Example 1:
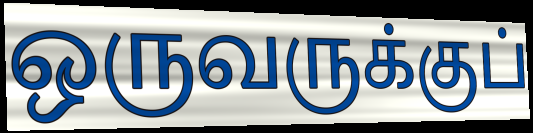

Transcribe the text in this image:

ஒருவருக்குப்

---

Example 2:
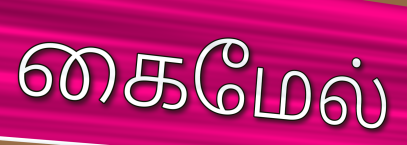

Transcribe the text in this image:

கைமேல்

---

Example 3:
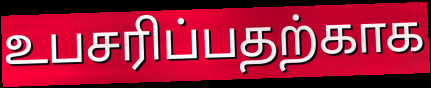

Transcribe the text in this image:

உபசரிப்பதற்காக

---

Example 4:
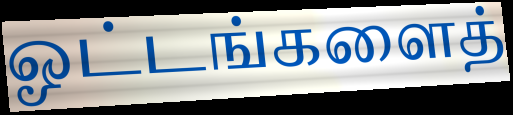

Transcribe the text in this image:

ஓட்டங்களைத்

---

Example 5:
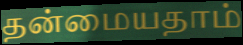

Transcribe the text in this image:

தன்மையதாம்